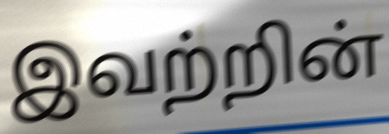
இவற்றின்